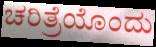
ಚರಿತ್ರೆಯೊಂದು